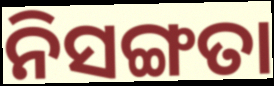
ନିସଙ୍ଗତା